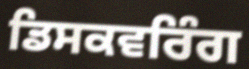
ਡਿਸਕਵਰਿੰਗ